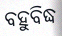
ବହୁବିଦ୍ଧ